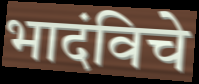
भादंविचे